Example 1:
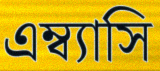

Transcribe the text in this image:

এম্ব্যাসি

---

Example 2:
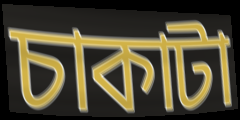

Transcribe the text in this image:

চাকাটা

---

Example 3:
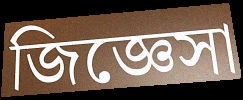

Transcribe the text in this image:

জিজ্ঞেসা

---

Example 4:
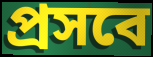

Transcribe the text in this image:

প্রসবে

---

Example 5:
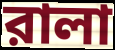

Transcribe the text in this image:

রালা